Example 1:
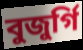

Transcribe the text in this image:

বুজুর্গি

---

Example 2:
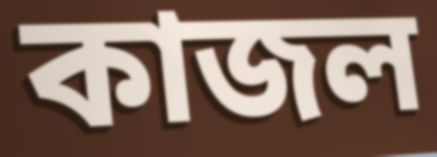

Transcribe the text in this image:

কাজল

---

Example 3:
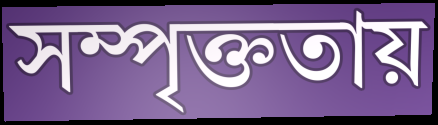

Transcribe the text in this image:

সম্পৃক্ততায়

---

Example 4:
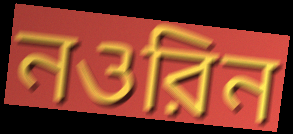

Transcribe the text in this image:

নওরিন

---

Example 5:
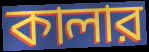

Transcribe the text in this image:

কালার